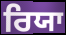
ਰਿਯਾ